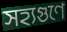
সহ্যগুণে